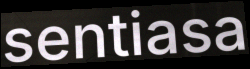
sentiasa